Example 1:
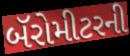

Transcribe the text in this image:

બૅરોમીટરની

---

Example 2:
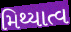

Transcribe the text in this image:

મિથ્યાત્વ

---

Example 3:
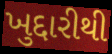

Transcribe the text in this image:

ખુદ્દારીથી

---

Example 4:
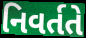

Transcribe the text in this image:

નિવર્તતે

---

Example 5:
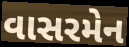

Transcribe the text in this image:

વાસરમેન